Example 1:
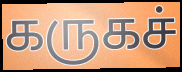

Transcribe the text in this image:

கருகச்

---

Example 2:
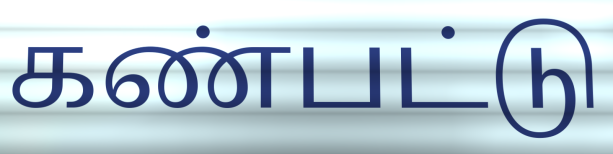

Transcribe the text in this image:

கண்பட்டு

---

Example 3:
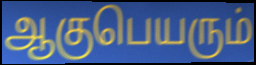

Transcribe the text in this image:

ஆகுபெயரும்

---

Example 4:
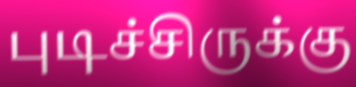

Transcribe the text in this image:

புடிச்சிருக்கு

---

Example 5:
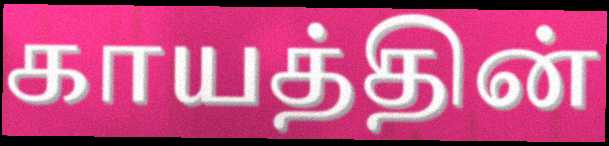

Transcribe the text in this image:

காயத்தின்